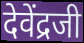
देवेंद्रजी